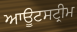
ਆਊਟਸਟ੍ਰੀਮ